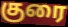
குரை